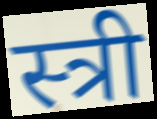
स्त्री